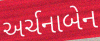
અર્ચનાબેન